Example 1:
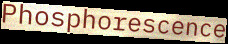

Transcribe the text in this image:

Phosphorescence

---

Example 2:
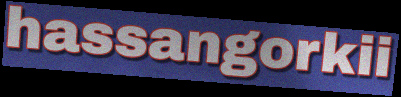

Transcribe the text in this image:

hassangorkii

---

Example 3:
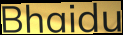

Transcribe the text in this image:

Bhaidu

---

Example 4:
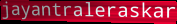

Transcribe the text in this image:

jayantraleraskar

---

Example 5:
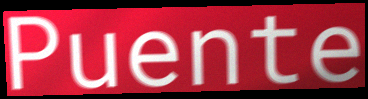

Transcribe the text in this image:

Puente